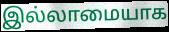
இல்லாமையாக